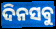
ଦିନସବୁ